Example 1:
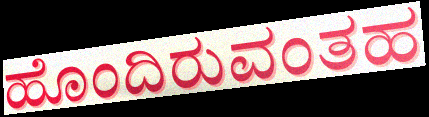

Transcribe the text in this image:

ಹೊಂದಿರುವಂತಹ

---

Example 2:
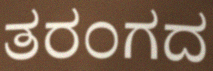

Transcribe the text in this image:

ತರಂಗದ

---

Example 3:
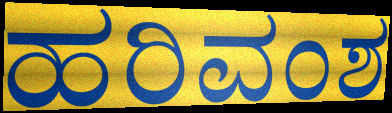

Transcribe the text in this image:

ಹರಿವಂಶ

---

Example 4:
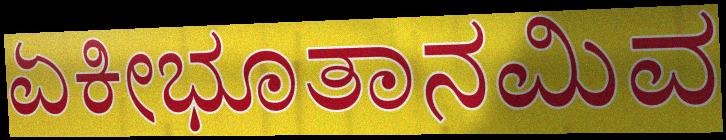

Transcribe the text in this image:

ಏಕೀಭೂತಾನಮಿವ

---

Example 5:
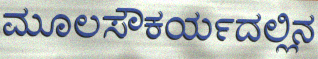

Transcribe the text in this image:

ಮೂಲಸೌಕರ್ಯದಲ್ಲಿನ